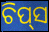
ଚିପ୍‌ସ